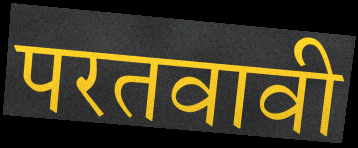
परतवावी